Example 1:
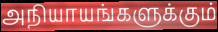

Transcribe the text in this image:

அநியாயங்களுக்கும்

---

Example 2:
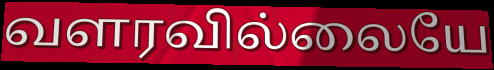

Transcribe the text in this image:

வளரவில்லையே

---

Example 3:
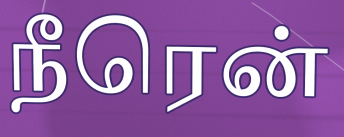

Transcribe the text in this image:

நீரென்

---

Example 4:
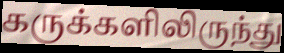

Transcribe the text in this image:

கருக்களிலிருந்து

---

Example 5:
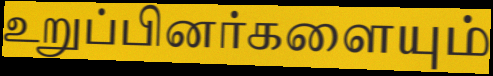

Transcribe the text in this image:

உறுப்பினர்களையும்